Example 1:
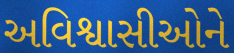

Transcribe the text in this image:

અવિશ્વાસીઓને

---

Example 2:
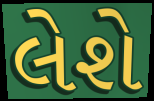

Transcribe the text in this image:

લેશે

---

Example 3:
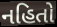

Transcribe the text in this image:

નહિતો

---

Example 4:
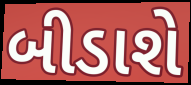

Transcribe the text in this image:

બીડાશે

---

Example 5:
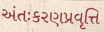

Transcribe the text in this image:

અંતઃકરણપ્રવૃત્તિ